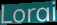
Lorai